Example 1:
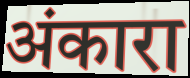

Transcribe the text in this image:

अंकारा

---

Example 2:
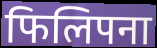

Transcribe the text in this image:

फिलिपना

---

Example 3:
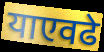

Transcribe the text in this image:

याएवढे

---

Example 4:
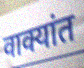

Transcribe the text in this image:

वाक्यांत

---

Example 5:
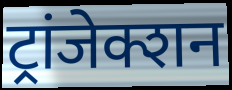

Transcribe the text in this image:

ट्रांजेक्शन